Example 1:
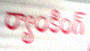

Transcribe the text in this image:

ర్యాంకింగ్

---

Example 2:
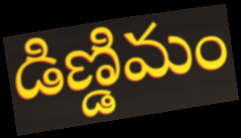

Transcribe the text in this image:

డిణ్డిమం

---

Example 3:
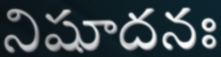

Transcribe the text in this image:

నిషూదనః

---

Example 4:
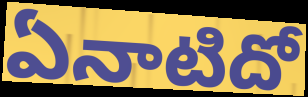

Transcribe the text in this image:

ఏనాటిదో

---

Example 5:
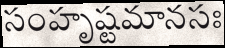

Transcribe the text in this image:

సంహృష్టమానసః